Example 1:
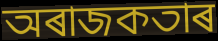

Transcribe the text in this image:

অৰাজকতাৰ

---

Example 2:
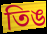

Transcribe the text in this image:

তিঙ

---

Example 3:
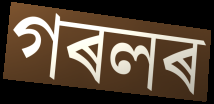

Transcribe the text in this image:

গৰলৰ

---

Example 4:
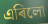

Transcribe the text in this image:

এৰিলো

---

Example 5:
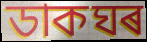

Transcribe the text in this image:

ডাকঘৰ